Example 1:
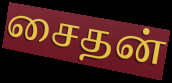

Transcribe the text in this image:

சைதன்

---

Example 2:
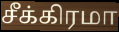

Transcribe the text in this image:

சீக்கிரமா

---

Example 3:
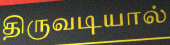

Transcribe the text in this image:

திருவடியால்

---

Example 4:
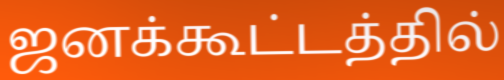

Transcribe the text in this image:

ஜனக்கூட்டத்தில்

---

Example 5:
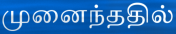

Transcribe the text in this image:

முனைந்ததில்